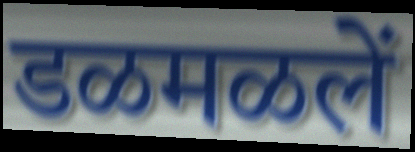
डळमळलें